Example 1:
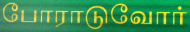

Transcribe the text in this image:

போராடுவோர்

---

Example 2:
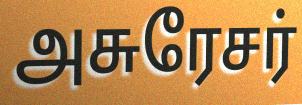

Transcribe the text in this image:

அசுரேசர்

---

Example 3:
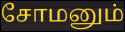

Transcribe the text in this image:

சோமனும்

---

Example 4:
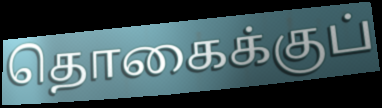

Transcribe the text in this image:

தொகைக்குப்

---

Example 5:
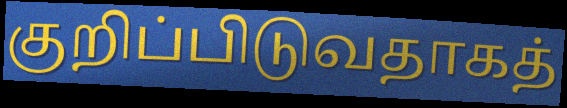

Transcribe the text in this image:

குறிப்பிடுவதாகத்